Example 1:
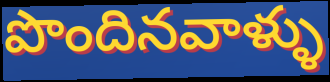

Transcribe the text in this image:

పొందినవాళ్ళు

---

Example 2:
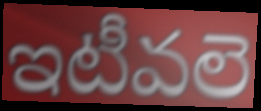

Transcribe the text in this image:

ఇటీవలె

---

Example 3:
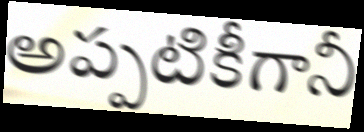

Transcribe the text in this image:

అప్పటికీగానీ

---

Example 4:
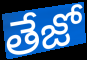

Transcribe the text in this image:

తేజో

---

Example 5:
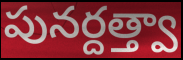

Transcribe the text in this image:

పునర్దత్త్వా